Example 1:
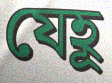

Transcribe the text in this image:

যেহূ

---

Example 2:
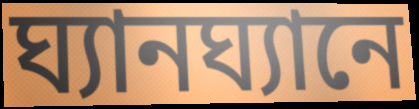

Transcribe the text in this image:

ঘ্যানঘ্যানে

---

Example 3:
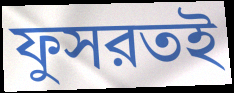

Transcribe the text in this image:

ফুসরতই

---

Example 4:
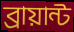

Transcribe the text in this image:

ব্রায়ান্ট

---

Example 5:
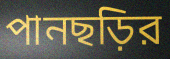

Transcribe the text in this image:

পানছড়ির